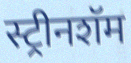
स्ट्रीनशॅम